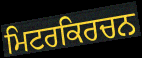
ਮਿਟਰਕਿਰਚਨ